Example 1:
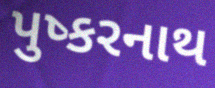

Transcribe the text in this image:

પુષ્કરનાથ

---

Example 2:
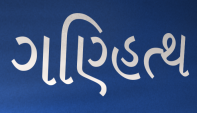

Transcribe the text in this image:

ગણ્હિત્થ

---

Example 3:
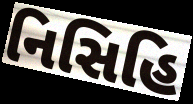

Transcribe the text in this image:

નિસિહિ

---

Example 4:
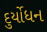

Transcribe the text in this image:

દુર્યોધન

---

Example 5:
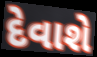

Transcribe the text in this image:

દેવાશે